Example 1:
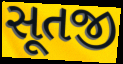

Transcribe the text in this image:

સૂતજી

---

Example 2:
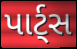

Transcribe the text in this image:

પાર્ટ્સ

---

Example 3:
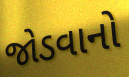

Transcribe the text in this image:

જોડવાનો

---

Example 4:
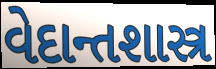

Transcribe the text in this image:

વેદાન્તશાસ્ત્ર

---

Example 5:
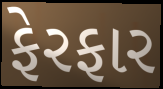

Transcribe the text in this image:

ફેરફાર